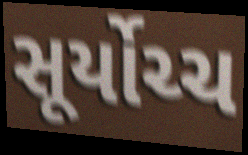
સૂર્યોચ્ચ